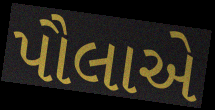
પૌલાએ